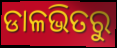
ଡାଳଭିତରୁ